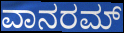
ವಾನರಮ್